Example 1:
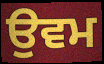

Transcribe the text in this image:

ਉਵਮ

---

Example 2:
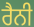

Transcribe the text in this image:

ਰੈਨੀ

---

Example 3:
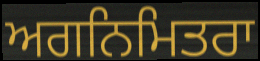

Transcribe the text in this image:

ਅਗਨਿਮਿਤਰਾ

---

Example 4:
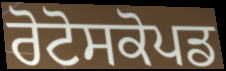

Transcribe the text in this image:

ਰੋਟੋਸਕੋਪਡ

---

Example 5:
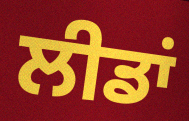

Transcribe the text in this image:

ਲੀਡਾਂ